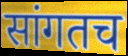
सांगतच